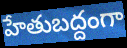
హేతుబద్దంగా